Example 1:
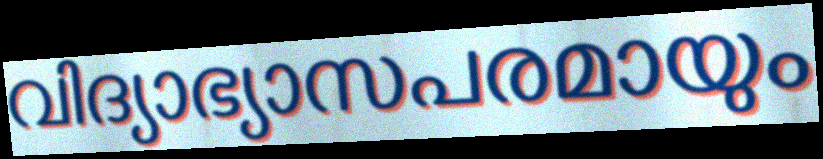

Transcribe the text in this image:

വിദ്യാഭ്യാസപരമായും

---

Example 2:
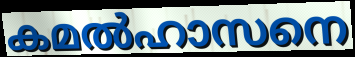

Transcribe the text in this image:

കമൽഹാസനെ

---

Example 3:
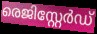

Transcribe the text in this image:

രെജിസ്റ്റേർഡ്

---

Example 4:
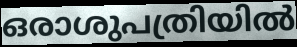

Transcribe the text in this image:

ഒരാശുപത്രിയിൽ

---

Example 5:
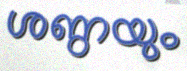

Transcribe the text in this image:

ശണ്ഠയും